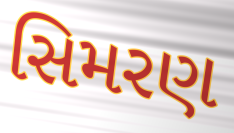
સિમરણ